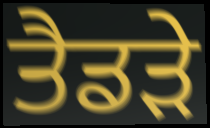
ਤੈਡੜੇ